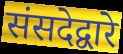
संसदेद्वारे